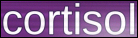
cortisol